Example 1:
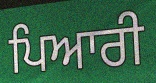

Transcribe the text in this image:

ਪਿਆਰੀ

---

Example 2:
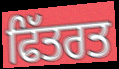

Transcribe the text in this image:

ਫਿੱਤਰਤ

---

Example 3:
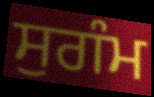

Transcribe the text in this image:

ਸੁਗੰਮ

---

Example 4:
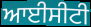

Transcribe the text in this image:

ਆਈਸੀਟੀ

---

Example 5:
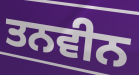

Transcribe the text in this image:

ਤਨਵੀਨ